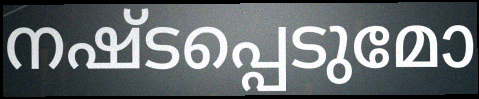
നഷ്ടപ്പെടുമോ